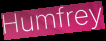
Humfrey